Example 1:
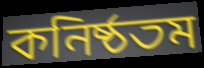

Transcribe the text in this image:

কনিষ্ঠতম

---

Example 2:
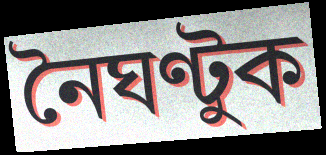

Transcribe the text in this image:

নৈঘণ্টুক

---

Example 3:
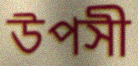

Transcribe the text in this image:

উপসী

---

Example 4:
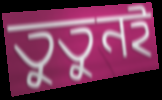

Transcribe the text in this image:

তুতুনই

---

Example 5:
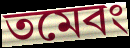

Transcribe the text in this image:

তমেবং